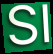
Sl